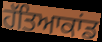
ਹੱਤਿਆਕਾਂਡ